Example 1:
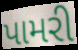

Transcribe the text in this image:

પામરી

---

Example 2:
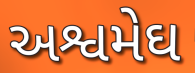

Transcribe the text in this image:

અશ્વમેઘ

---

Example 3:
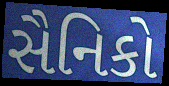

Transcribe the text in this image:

સૈનિકો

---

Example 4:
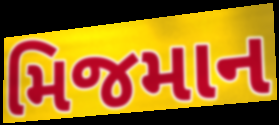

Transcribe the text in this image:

મિજમાન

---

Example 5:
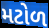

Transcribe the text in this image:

મટોળ